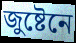
জুষ্টেনে